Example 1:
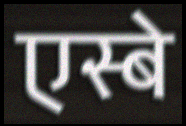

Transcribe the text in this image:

एस्बे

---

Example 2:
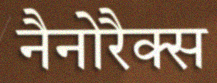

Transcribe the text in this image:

नैनोरैक्स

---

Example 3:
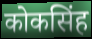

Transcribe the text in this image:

कोकसिंह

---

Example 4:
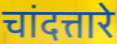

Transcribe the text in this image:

चांदत्तारे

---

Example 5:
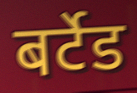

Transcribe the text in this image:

बर्टेड